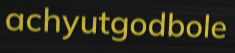
achyutgodbole